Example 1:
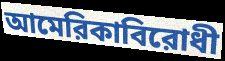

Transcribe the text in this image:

আমেরিকাবিরোধী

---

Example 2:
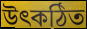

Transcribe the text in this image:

উৎকঠিত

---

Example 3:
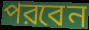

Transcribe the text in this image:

পরবেন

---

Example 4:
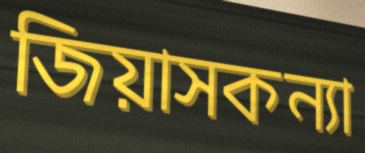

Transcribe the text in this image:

জিয়াসকন্যা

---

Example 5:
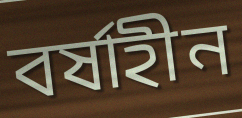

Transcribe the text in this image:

বর্ষাহীন